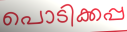
പൊടിക്കപ്പ